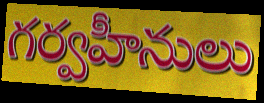
గర్వహీనులు